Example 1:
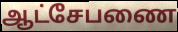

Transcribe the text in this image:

ஆட்சேபணை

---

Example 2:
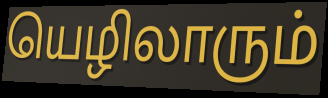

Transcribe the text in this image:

யெழிலாரும்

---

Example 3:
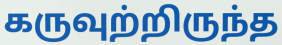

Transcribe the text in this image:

கருவுற்றிருந்த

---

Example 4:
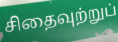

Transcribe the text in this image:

சிதைவுற்றுப்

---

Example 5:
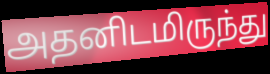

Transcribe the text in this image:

அதனிடமிருந்து